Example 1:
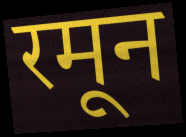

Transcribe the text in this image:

रमून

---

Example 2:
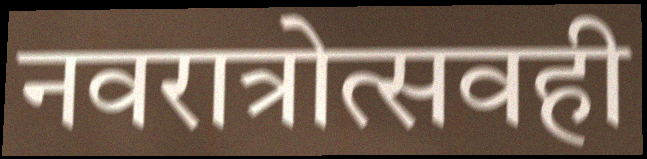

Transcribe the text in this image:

नवरात्रोत्सवही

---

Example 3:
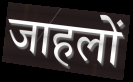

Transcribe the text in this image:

जाहलों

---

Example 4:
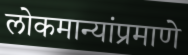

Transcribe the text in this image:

लोकमान्यांप्रमाणे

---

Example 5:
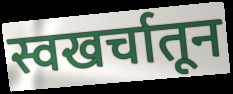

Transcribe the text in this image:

स्वखर्चातून